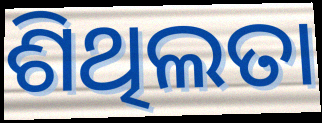
ଶିଥିଲତା